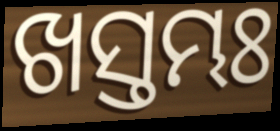
ଖସ୍ତମ୍ଭଃ